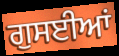
ਗੁਸਈਆਂ